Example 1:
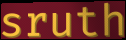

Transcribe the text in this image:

sruth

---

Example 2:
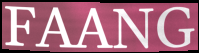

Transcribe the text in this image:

FAANG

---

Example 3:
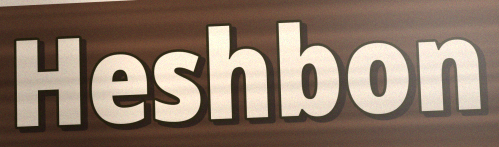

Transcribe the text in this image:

Heshbon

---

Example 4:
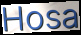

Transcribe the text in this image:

Hosa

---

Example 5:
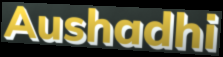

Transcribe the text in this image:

Aushadhi